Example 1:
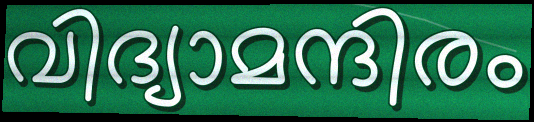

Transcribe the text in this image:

വിദ്യാമന്ദിരം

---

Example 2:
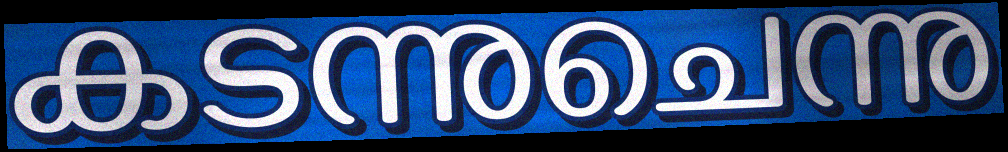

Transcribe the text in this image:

കടന്നുചെന്നു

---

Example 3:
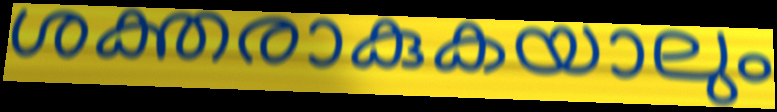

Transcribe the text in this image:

ശക്തരാകുകയാലും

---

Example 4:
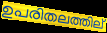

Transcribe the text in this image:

ഉപരിതലത്തില്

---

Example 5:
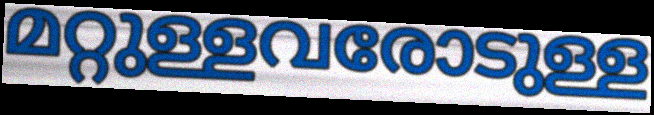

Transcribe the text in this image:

മറ്റുള്ളവരോടുള്ള